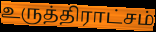
உருத்திராட்சம்